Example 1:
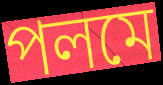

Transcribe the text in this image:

পলমে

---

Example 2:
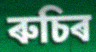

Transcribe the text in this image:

ৰুচিৰ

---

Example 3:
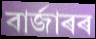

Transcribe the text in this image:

বাৰ্জাৰৰ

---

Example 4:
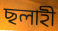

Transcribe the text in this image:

ছলাহী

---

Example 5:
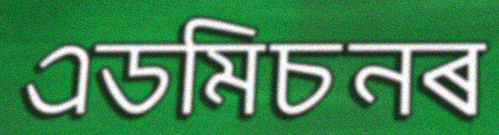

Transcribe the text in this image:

এডমিচনৰ